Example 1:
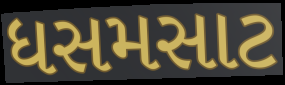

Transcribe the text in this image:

ધસમસાટ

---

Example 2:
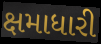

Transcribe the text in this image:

ક્ષમાધારી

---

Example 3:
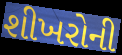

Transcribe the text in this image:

શીખરોની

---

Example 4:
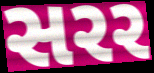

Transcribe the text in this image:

સરર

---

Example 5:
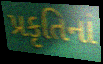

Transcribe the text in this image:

પ્રકૃતિનાં